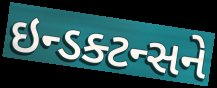
ઇન્ડક્ટન્સને